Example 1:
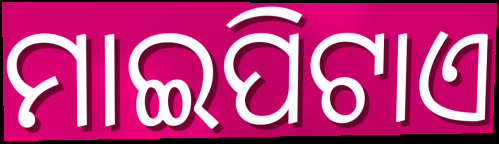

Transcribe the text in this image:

ମାଇପିଟାଏ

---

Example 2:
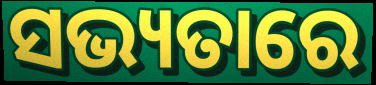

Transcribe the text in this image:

ସଭ୍ୟତାରେ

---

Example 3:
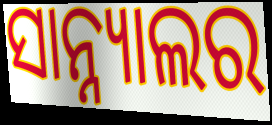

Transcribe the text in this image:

ସାନ୍ନ୍ୟାଲର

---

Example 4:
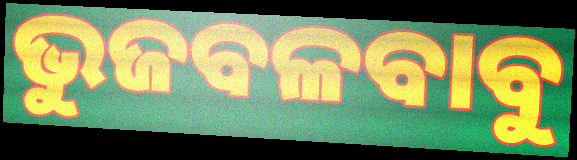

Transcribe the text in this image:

ଭୁଜବଳବାବୁ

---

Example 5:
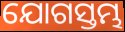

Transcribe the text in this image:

ଯୋଗସ୍ତମ୍ଭ